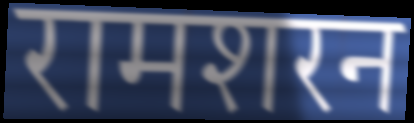
रामशरन